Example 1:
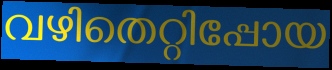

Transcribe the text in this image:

വഴിതെറ്റിപ്പോയ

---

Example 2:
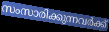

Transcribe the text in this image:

സംസാരിക്കുന്നവർക്ക്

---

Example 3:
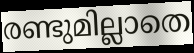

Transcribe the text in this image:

രണ്ടുമില്ലാതെ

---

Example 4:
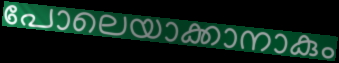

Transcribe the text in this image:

പോലെയാക്കാനാകും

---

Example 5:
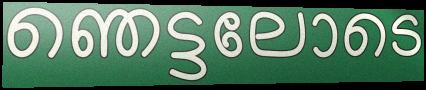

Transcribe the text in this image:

ഞെട്ടലോടെ